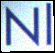
Nl